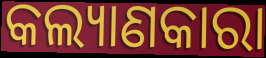
କଲ୍ୟାଣକାରା